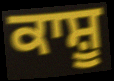
ਕਾਸ਼ੂ